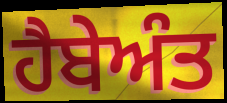
ਹੈਬੇਅੰਤ